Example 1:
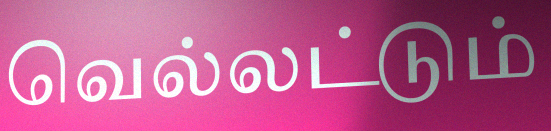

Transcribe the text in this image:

வெல்லட்டும்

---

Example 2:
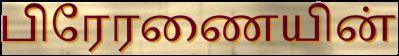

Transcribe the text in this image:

பிரேரணையின்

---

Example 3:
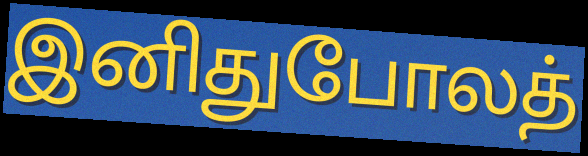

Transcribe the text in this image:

இனிதுபோலத்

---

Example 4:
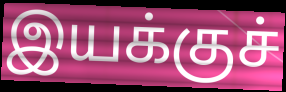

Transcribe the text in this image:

இயக்குச்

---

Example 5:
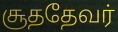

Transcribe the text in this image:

சூததேவர்